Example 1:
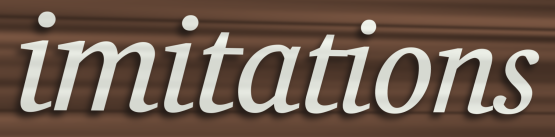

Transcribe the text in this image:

imitations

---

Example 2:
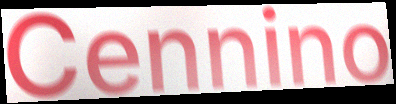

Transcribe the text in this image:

Cennino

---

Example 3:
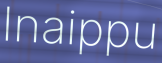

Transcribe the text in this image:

Inaippu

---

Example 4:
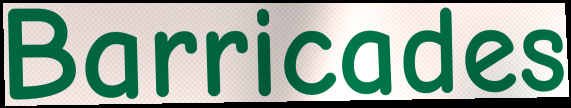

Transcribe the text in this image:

Barricades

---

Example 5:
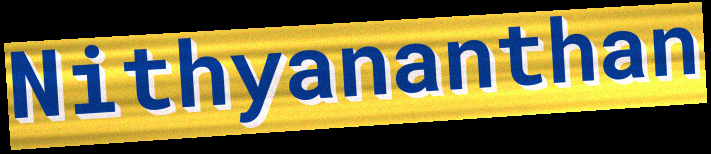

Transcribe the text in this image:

Nithyananthan